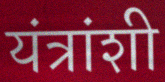
यंत्रांशी